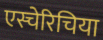
एस्चेरिचिया